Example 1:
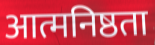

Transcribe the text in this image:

आत्मनिष्ठता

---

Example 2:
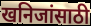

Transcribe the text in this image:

खनिजांसाठी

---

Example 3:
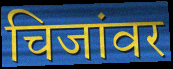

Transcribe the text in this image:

चिजांवर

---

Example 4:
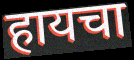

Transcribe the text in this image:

हायचा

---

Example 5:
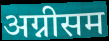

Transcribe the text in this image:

अग्नीसम